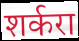
शर्करा